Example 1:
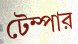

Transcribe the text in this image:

টেম্পার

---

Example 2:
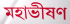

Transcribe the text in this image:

মহাভীষণ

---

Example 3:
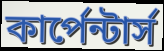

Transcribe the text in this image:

কার্পেন্টার্স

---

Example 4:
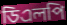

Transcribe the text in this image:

ডিএলপি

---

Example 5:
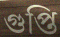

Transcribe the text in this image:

গুপ্তি